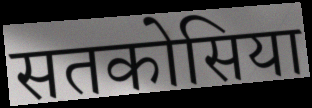
सतकोसिया